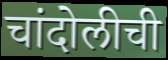
चांदोलीची